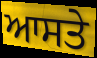
ਆਸਤੇ